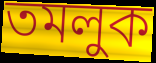
তমলুক